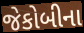
જેકોબીના